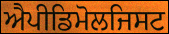
ਐਪੀਡਿਮੋਲਜਿਸਟ